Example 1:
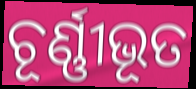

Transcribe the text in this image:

ଚୂର୍ଣ୍ଣୀଭୂତ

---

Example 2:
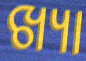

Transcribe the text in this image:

ଖ୍ୟା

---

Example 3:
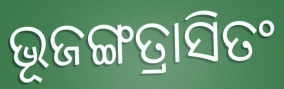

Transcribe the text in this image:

ଭୂଜଙ୍ଗତ୍ରାସିତଂ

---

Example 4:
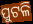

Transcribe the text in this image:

ପୁଟଳି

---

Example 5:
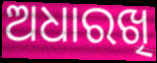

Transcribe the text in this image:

ଅଧାରଖି